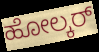
ಹೋಲ್ಕರ್